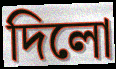
দিলো